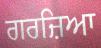
ਗਰਜ਼ਿਆ